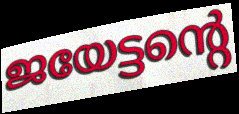
ജയേട്ടന്റെ